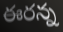
ఈరన్న